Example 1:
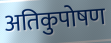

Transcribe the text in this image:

अतिकुपोषण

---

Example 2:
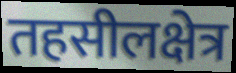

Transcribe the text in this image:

तहसीलक्षेत्र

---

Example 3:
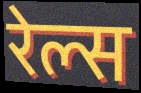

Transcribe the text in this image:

रेल्स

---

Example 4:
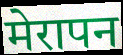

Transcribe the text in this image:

मेरापन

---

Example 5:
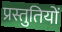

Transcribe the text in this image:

प्रस्तुतियों